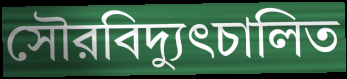
সৌরবিদ্যুৎচালিত